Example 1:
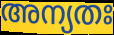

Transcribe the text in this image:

അന്യതഃ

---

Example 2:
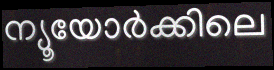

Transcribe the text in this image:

ന്യൂയോർക്കിലെ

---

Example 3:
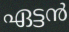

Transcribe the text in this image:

ഏട്ടൻ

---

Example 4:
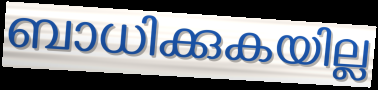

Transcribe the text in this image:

ബാധിക്കുകയില്ല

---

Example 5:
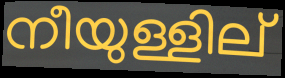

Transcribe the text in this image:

നീയുള്ളില്